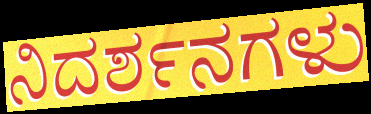
ನಿದರ್ಶನಗಳು